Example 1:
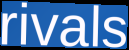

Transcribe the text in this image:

rivals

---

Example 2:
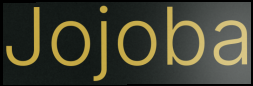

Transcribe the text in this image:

Jojoba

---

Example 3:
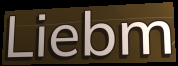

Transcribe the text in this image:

Liebm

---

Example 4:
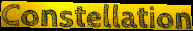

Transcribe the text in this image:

Constellation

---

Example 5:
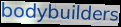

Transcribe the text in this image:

bodybuilders